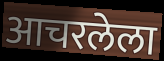
आचरलेला